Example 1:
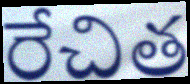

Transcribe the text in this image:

రేచిత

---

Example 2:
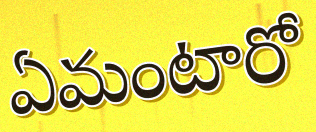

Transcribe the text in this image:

ఏమంటారో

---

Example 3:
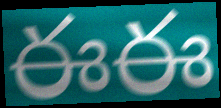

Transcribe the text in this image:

ఈఈ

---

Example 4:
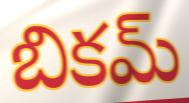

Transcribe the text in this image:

బికమ్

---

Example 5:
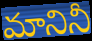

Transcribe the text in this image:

మానినీ